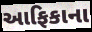
આફિકાના